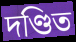
দণ্ডিত